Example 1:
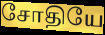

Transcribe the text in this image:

சோதியே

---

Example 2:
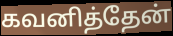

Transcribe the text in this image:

கவனித்தேன்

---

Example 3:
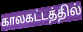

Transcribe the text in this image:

காலகட்டத்தில்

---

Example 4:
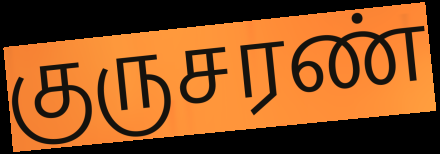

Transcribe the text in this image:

குருசரண்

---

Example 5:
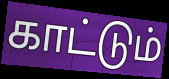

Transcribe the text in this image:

காட்டும்